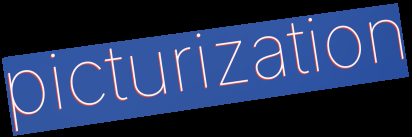
picturization